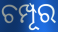
ଚମ୍ପୂର